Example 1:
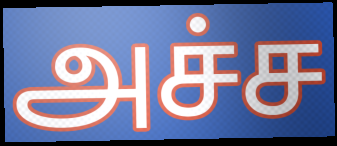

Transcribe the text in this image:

அச்ச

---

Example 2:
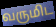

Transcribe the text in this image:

வருமிட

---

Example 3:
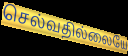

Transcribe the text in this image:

செல்வதில்லையே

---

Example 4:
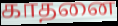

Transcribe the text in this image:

காதனை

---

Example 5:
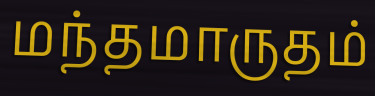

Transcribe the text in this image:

மந்தமாருதம்